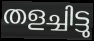
തളച്ചിട്ടു